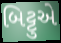
બિટ્ટુએ